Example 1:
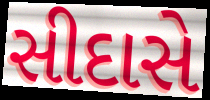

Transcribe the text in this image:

સીદાસે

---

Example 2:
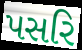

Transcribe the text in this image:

પસરિ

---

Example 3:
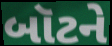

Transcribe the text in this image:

બૉટને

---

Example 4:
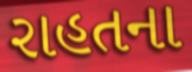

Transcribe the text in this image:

રાહતના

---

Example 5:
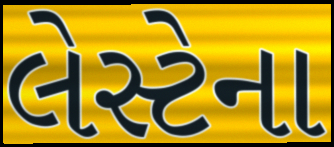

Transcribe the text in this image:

લેસ્ટેના